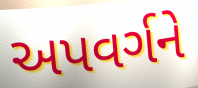
અપવર્ગને